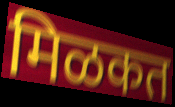
मिळकत